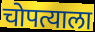
चोपत्याला